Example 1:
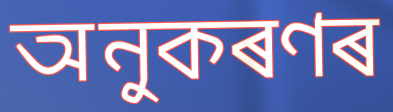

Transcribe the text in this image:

অনুকৰণৰ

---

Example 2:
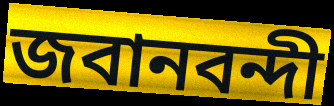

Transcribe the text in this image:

জবানবন্দী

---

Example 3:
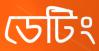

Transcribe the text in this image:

ডেটিং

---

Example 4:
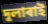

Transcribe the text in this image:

দুলাৰাই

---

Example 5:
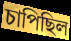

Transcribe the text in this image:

চাপিছিল